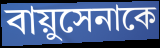
বায়ুসেনাকে